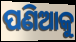
ପଣିଆକୁ